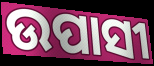
ଉପାସୀ